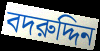
বদরুদ্দিন